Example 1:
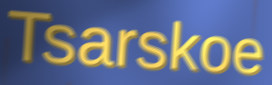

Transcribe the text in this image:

Tsarskoe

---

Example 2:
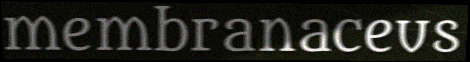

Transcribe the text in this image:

membranaceus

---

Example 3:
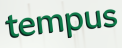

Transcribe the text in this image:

tempus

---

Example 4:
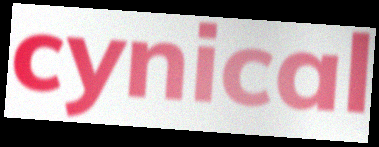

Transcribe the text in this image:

cynical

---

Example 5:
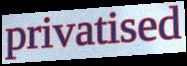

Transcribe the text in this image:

privatised